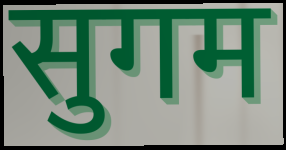
सुगम